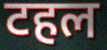
टहल